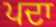
ਪਦਾ